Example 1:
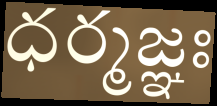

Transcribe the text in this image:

ధర్మజ్ఞః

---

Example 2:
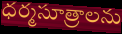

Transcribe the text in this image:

ధర్మసూత్రాలను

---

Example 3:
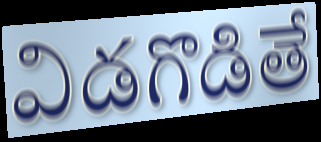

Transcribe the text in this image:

విడగొడితే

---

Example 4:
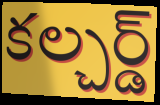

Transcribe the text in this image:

కల్చర్డ్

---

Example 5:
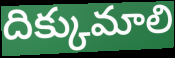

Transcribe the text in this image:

దిక్కుమాలి